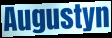
Augustyn